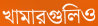
খামারগুলিও